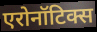
एरोनॉटिक्स